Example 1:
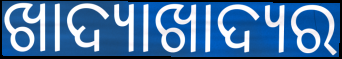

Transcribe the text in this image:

ଖାଦ୍ୟାଖାଦ୍ୟର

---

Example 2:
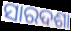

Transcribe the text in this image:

ସାରଦଶା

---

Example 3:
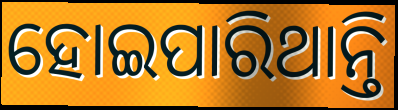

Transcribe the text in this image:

ହୋଇପାରିଥାନ୍ତି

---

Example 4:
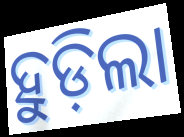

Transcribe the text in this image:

ହୁଡ଼ିଲା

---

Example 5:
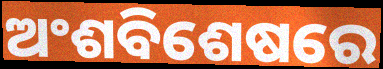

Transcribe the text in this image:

ଅଂଶବିଶେଷରେ